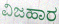
ವಿಜಹಾರ